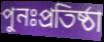
পুনঃপ্রতিষ্ঠা